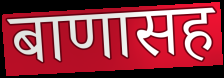
बाणासह